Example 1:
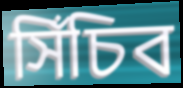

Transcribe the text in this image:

সিঁচিব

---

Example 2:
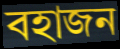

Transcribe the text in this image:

বহাজন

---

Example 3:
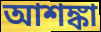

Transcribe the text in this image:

আশঙ্কা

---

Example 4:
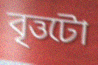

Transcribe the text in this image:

বৃত্তটো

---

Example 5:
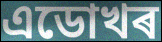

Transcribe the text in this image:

এডোখৰ